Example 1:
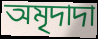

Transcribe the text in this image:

অমৃদাদা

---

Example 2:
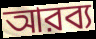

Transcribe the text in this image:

আরব্য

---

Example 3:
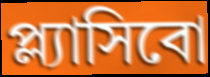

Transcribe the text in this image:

প্ল্যাসিবো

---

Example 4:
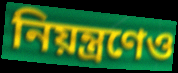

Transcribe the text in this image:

নিয়ন্ত্রণেও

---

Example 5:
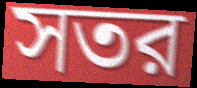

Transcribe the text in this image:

সতর